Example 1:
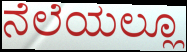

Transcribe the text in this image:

ನೆಲೆಯಲ್ಲೂ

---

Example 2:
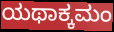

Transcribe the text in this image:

ಯಥಾಕ್ಕಮಂ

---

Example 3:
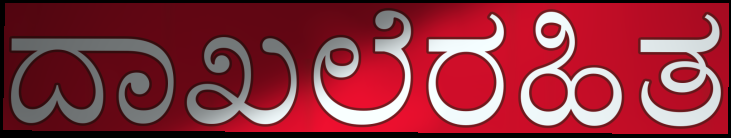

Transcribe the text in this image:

ದಾಖಲೆರಹಿತ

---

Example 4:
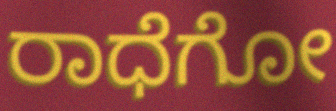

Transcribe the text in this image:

ರಾಧೆಗೋ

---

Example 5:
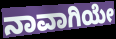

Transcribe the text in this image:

ನಾವಾಗಿಯೇ